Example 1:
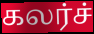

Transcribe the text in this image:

கலர்ச்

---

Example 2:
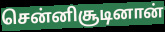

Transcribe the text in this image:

சென்னிசூடினான்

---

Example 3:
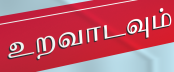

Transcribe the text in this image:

உறவாடவும்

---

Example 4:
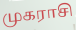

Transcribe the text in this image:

முகராசி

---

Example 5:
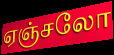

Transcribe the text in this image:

ஏஞ்சலோ